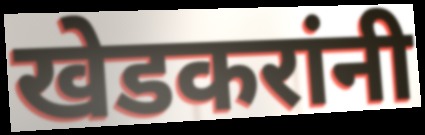
खेडकरांनी